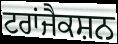
ਟਰਾਂਜੈਕਸ਼ਨ